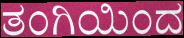
ತಂಗಿಯಿಂದ